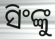
ସିଂଙ୍କୁ